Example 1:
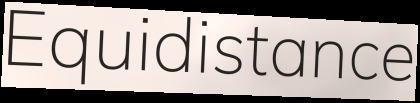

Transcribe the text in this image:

Equidistance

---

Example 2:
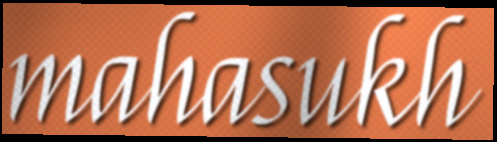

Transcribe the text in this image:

mahasukh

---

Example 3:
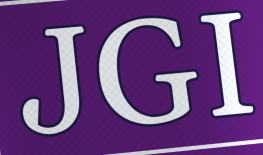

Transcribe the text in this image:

JGI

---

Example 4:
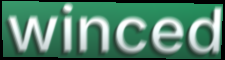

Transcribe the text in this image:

winced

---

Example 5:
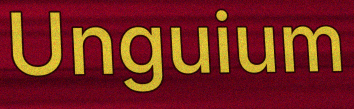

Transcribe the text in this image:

Unguium